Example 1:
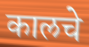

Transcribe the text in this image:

कालचे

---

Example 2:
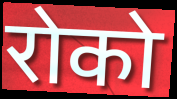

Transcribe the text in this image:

रोको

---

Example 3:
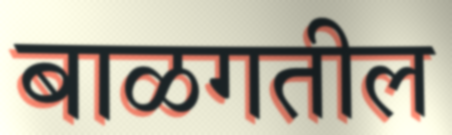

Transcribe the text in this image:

बाळगतील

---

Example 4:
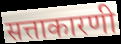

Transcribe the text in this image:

सत्ताकारणी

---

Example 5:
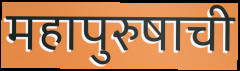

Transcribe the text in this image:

महापुरुषाची